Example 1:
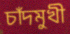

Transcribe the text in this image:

চাঁদমুখী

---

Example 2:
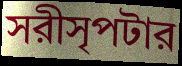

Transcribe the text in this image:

সরীসৃপটার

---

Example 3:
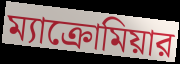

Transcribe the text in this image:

ম্যাক্রোমিয়ার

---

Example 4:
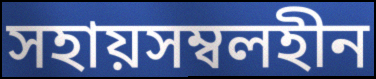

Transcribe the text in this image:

সহায়সম্বলহীন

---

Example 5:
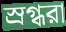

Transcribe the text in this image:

স্রগ্ধরা